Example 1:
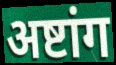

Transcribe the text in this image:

अष्टांग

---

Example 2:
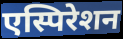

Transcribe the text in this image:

एस्पिरेशन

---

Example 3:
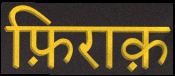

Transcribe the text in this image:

फ़िराक़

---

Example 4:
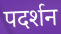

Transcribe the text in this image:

पदर्शन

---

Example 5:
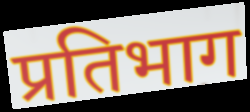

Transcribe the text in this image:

प्रतिभाग